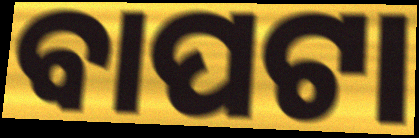
ବାପଟା